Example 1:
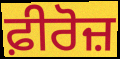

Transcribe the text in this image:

ਫ਼ੀਰੋਜ਼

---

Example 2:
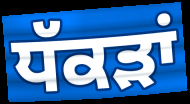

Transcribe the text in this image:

ਧੱਕੜਾਂ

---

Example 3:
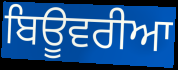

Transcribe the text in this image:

ਬਿਊਵਰੀਆ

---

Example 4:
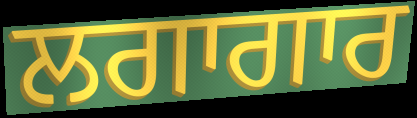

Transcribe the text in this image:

ਲਗਾਗਾਰ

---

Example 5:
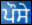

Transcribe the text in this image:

ਪੌਸੇ